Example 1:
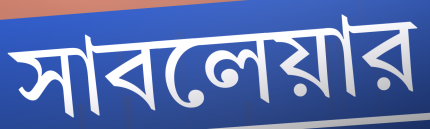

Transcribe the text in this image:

সাবলেয়ার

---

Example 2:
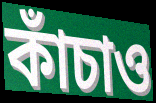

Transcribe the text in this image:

কাঁচাও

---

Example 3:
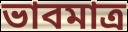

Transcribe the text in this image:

ভাবমাত্র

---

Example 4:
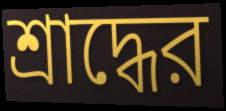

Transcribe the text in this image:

শ্রাদ্ধের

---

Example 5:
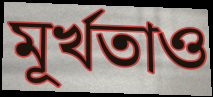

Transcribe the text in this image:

মূর্খতাও